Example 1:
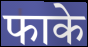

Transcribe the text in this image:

फाके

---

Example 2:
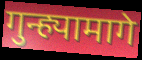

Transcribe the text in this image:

गुन्ह्यामागे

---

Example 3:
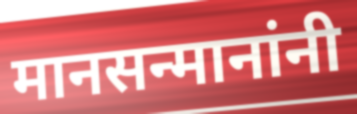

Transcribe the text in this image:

मानसन्मानांनी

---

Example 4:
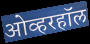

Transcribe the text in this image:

ओव्हरहॉल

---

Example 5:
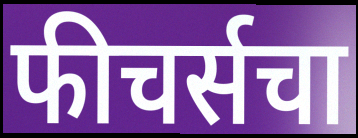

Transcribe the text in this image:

फीचर्सचा